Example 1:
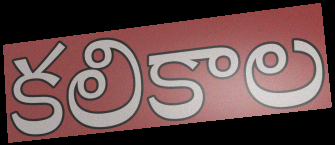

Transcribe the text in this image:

కలికాల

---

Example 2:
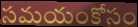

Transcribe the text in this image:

సమయంకోసం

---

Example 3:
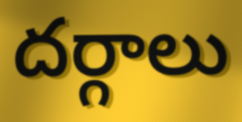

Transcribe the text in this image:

దర్గాలు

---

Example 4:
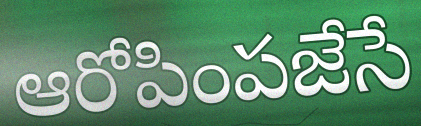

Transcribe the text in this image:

ఆరోపింపజేసే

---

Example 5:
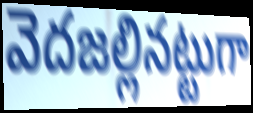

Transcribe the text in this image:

వెదజల్లినట్టుగా